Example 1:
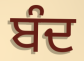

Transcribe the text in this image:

ਬੰਦ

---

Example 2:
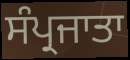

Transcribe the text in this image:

ਸੰਪ੍ਰਜਾਤਾ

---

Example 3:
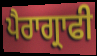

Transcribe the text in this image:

ਪੈਰਾਗ੍ਰਾਫੀ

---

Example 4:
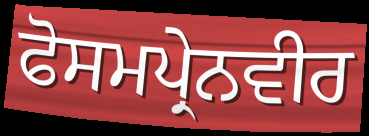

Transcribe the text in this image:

ਫੋਸਮਪ੍ਰੇਨਵੀਰ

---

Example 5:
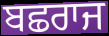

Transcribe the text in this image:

ਬਛਰਾਜ